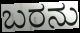
ಬರನು